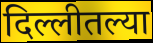
दिल्लीतल्या